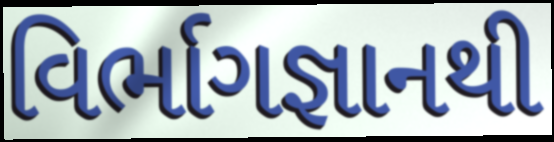
વિર્ભાગજ્ઞાનથી